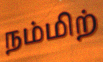
நம்மிற்